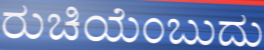
ರುಚಿಯೆಂಬುದು